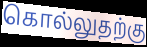
கொல்லுதற்கு